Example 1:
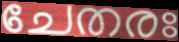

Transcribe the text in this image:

ചേതരഃ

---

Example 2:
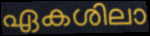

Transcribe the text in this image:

ഏകശിലാ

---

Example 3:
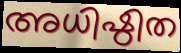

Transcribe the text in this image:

അധിഷ്ഠിത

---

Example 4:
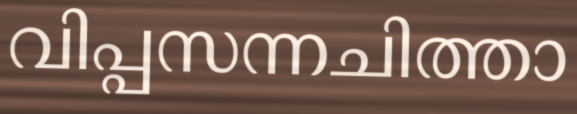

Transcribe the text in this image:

വിപ്പസന്നചിത്താ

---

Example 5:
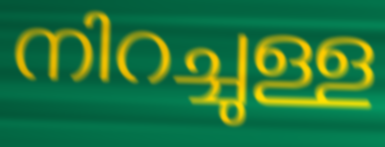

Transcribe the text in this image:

നിറച്ചുള്ള